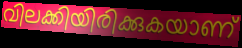
വിലക്കിയിരിക്കുകയാണ്